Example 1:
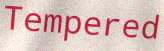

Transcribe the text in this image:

Tempered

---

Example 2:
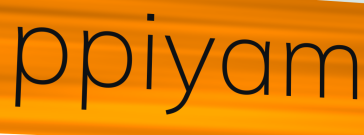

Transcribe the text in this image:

ppiyam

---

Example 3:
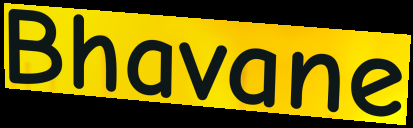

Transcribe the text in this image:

Bhavane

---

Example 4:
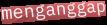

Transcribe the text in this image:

menganggap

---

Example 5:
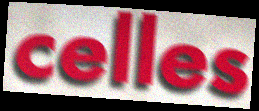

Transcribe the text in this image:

celles